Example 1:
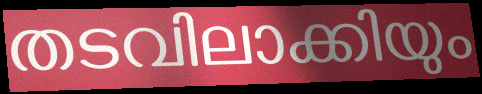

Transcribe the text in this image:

തടവിലാക്കിയും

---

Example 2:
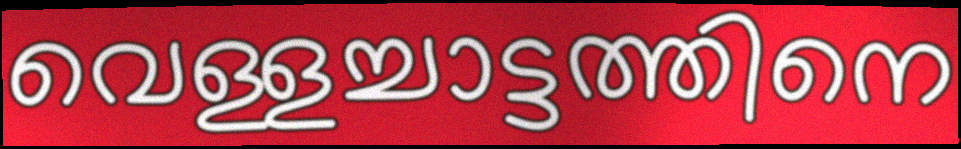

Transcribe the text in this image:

വെള്ളച്ചാട്ടത്തിനെ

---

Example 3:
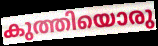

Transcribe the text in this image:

കുത്തിയൊരു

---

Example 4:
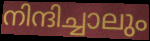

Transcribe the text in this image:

നിന്ദിച്ചാലും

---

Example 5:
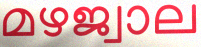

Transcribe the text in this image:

മഴജ്വാല